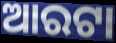
ଆରଟା